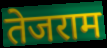
तेजराम